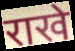
राखे